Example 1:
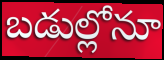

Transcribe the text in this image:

బడుల్లోనూ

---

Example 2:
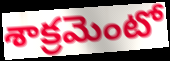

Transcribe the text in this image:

శాక్రమెంటో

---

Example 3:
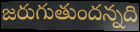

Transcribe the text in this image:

జరుగుతుందన్నది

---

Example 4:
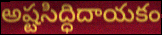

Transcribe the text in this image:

అష్టసిద్ధిదాయకం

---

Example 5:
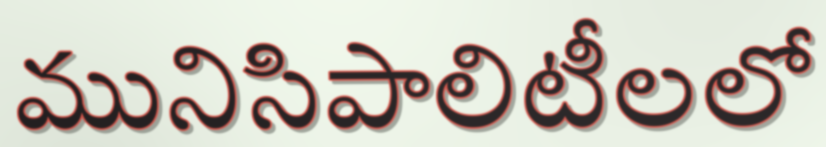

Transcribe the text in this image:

మునిసిపాలిటీలలో